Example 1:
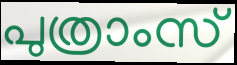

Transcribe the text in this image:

പുത്രാംസ്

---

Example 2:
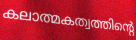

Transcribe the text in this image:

കലാത്മകത്വത്തിന്റെ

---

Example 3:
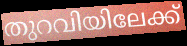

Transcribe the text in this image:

തുറവിയിലേക്ക്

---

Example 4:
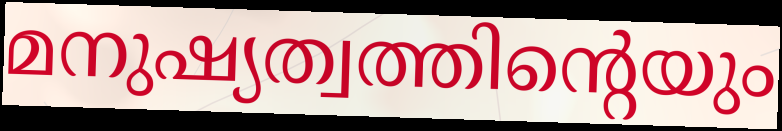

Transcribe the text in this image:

മനുഷ്യത്വത്തിന്റെയും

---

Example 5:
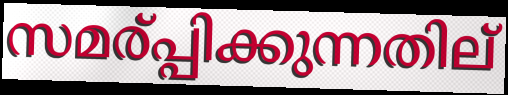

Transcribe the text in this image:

സമര്പ്പിക്കുന്നതില്